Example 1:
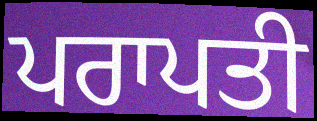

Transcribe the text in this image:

ਪਰਾਪਤੀ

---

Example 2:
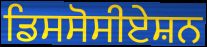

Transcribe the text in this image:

ਡਿਸਸੋਸੀਏਸ਼ਨ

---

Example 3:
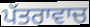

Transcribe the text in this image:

ਪੱਤਰਾਵਾਚ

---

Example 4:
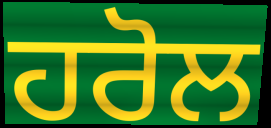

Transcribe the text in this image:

ਹਰੋਲ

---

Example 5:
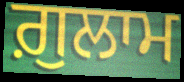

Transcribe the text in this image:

ਗ਼ੁਲਾਮ